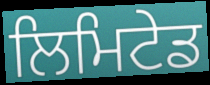
ਲਿਮਿਟੇਡ